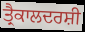
ਤ੍ਰੈਕਾਲਦਰਸ਼ੀ